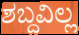
ಶಬ್ದವಿಲ್ಲ